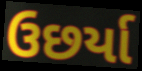
ઉછર્યા